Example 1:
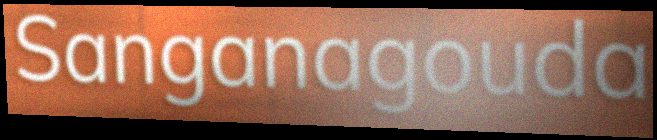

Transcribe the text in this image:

Sanganagouda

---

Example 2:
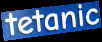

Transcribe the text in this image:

tetanic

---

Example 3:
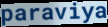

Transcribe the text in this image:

paraviya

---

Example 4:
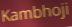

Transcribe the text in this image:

Kambhoji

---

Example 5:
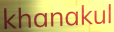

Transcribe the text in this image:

khanakul